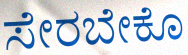
ಸೇರಬೇಕೊ